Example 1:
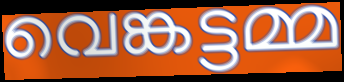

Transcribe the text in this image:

വെങ്കട്ടമ്മ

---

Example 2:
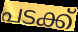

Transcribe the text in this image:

പടക്ക്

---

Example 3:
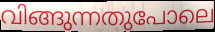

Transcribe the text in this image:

വിങ്ങുന്നതുപോലെ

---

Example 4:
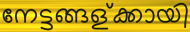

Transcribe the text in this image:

നേട്ടങ്ങള്ക്കായി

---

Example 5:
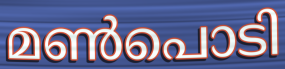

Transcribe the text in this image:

മൺപൊടി